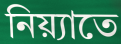
নিয়্যাতে